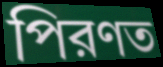
পিরণত